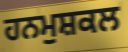
ਹਨਮੁਸ਼ਕਲ